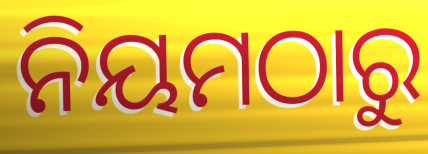
ନିୟମଠାରୁ